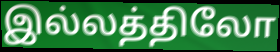
இல்லத்திலோ